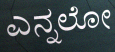
ಎನ್ನಲೋ